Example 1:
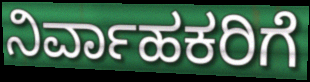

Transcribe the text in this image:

ನಿರ್ವಾಹಕರಿಗೆ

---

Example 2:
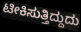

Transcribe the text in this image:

ಟೀಕಿಸುತ್ತಿದ್ದುದು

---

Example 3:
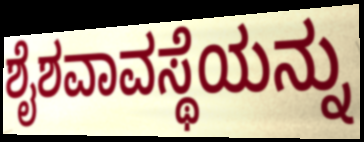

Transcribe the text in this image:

ಶೈಶವಾವಸ್ಥೆಯನ್ನು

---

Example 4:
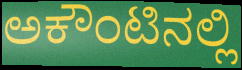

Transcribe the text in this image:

ಅಕೌಂಟಿನಲ್ಲಿ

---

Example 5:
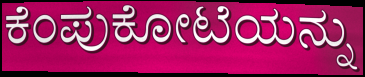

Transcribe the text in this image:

ಕೆಂಪುಕೋಟೆಯನ್ನು